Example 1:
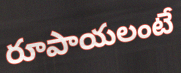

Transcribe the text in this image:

రూపాయలంటే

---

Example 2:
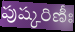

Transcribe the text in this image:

పుష్కరిణీః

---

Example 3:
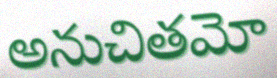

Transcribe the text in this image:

అనుచితమో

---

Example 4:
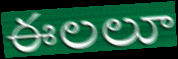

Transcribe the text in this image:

ఈలలూ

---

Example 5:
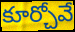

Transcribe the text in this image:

కూర్చోవే